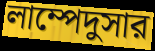
লাম্পেদুসার